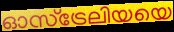
ഓസ്ട്രേലിയയെ